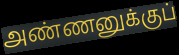
அண்ணனுக்குப்